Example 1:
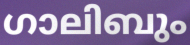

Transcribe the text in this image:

ഗാലിബും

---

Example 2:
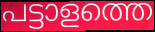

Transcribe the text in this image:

പട്ടാളത്തെ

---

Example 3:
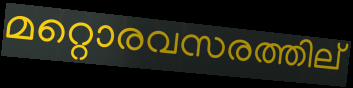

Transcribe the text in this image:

മറ്റൊരവസരത്തില്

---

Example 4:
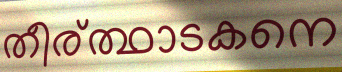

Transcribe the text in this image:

തീര്ത്ഥാടകനെ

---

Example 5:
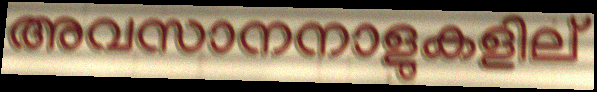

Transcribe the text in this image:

അവസാനനാളുകളില്